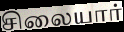
சிலையார்